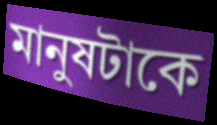
মানুষটাকে